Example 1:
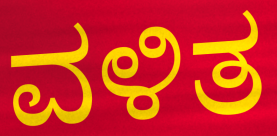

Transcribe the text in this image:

ವಳಿತ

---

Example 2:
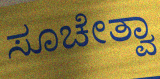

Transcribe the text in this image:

ಸೂಚೇತ್ವಾ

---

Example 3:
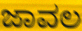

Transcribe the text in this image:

ಜಾವಲ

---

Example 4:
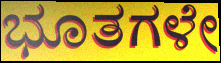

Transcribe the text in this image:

ಭೂತಗಳೇ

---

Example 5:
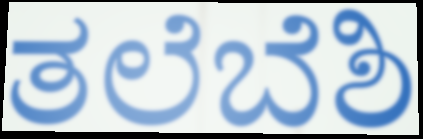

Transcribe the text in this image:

ತಲೆಬೆಶಿ